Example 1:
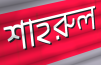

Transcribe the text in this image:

শাহরুল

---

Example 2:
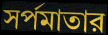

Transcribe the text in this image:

সর্পমাতার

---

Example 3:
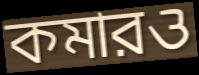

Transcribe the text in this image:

কমারও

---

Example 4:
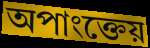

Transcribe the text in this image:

অপাংক্তেয়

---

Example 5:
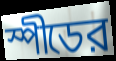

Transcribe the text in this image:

স্পীডের